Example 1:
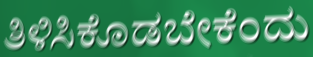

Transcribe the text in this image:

ತಿಳಿಸಿಕೊಡಬೇಕೆಂದು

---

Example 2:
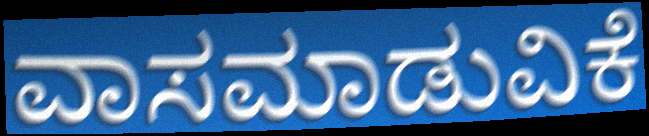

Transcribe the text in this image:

ವಾಸಮಾಡುವಿಕೆ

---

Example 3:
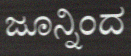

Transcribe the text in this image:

ಜೂನ್ನಿಂದ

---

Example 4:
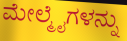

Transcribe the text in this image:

ಮೇಲ್ಮೈಗಳನ್ನು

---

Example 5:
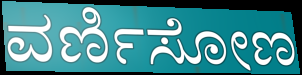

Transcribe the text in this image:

ವರ್ಣಿಸೋಣ